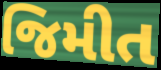
જિમીત